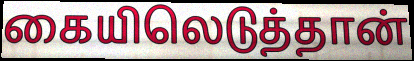
கையிலெடுத்தான்